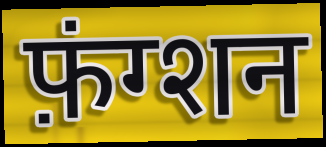
फ़ंग्शन